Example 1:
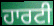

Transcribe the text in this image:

ਹਾਰਟੀ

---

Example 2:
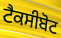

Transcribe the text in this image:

ਟੈਕਸੀਬੋਟ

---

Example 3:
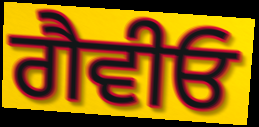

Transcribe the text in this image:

ਗੈਵੀਓ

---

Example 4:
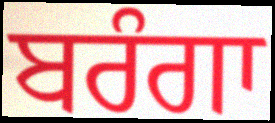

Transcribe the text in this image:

ਬਰੰਗਾ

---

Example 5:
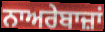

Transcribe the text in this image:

ਨਾਅਰੇਬਾਜ਼ਾਂ